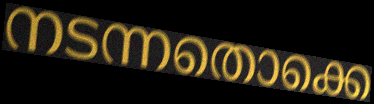
നടന്നതൊക്കെ